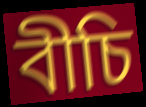
বীচি